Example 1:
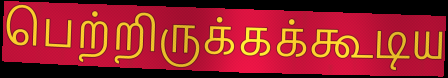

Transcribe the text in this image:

பெற்றிருக்கக்கூடிய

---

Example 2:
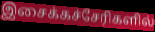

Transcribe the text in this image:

இசைக்கச்சேரிகளில்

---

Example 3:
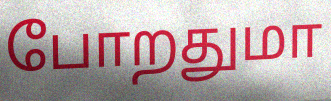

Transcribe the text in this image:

போறதுமா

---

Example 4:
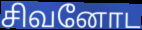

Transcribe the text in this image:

சிவனோட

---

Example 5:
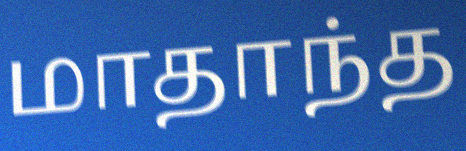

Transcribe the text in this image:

மாதாந்த